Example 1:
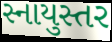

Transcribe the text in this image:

સ્નાયુસ્તર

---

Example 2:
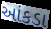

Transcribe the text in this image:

આંકડા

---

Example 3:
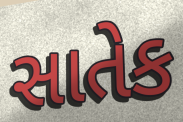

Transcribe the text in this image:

સાતેક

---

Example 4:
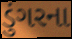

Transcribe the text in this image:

ડુંગરના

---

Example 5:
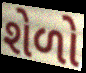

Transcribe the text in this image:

શેળો